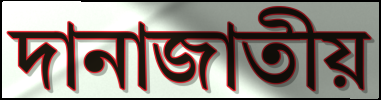
দানাজাতীয়